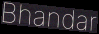
Bhandar